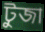
টুজা